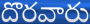
దొరవారు